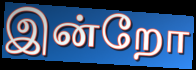
இன்றோ